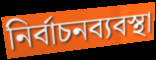
নির্বাচনব্যবস্থা